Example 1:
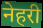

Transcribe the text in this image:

नेहरी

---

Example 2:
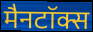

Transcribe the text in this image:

मैनटॉक्स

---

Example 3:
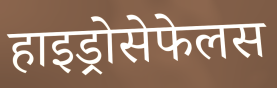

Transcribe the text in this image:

हाइड्रोसेफेलस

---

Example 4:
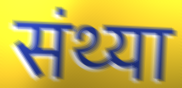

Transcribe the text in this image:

संथ्या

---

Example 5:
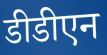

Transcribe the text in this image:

डीडीएन